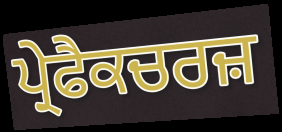
ਪ੍ਰੇਫੈਕਚਰਜ਼